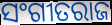
ସଂଗୀତରାଜ